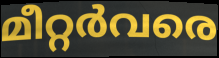
മീറ്റർവരെ